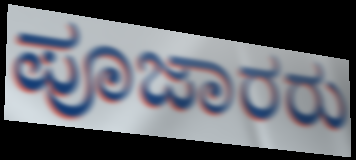
ಪೂಜಾರರು